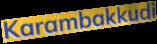
Karambakkudi